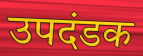
उपदंडक